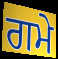
ਗਮੇ